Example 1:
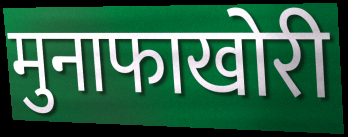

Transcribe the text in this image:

मुनाफाखोरी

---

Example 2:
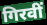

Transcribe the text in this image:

गिरवीं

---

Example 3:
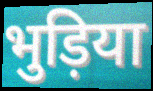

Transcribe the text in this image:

भुड़िया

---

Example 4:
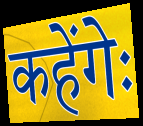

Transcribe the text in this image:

कहेंगेः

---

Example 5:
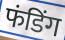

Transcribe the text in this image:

फंडिंग